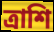
ত্রাশি